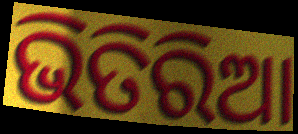
ଭିତିରିଆ